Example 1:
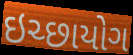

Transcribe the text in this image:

ઇચ્છાયોગ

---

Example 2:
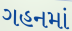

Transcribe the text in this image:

ગહનમાં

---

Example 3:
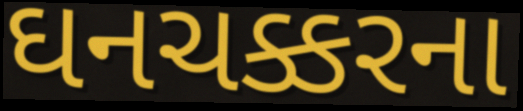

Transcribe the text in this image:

ઘનચક્કરના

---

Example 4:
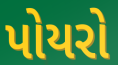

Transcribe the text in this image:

પોયરો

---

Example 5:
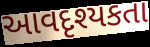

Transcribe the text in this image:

આવદૃશ્યકતા